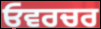
ਓਵਰਚਰ